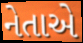
નેતાએ